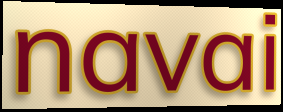
navai